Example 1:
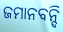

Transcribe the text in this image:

ଜମାନବନ୍ଦି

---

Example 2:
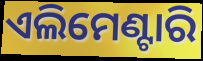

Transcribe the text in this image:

ଏଲିମେଣ୍ଟାରି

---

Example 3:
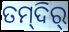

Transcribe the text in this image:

ତମ୍‍ଦିର୍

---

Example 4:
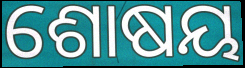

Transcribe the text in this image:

ଶୋଷୟ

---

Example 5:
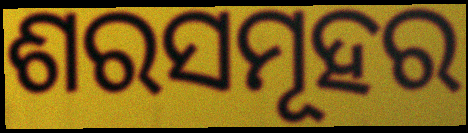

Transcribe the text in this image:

ଶରସମୂହର